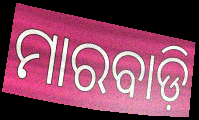
ମାରବାଡ଼ି